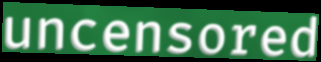
uncensored